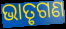
ଭାତୃଗଣ